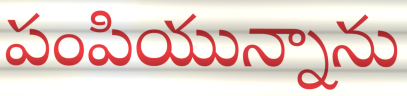
పంపియున్నాను